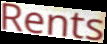
Rents